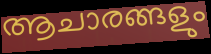
ആചാരങ്ങളും